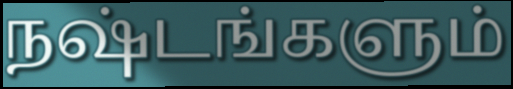
நஷ்டங்களும்